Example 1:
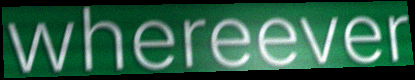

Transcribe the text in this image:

whereever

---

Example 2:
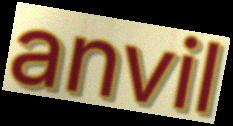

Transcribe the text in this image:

anvil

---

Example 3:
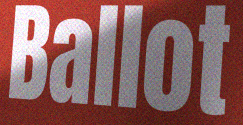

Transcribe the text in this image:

Ballot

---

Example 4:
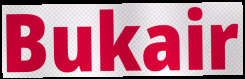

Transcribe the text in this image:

Bukair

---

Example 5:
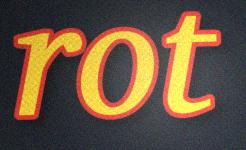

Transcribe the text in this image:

rot